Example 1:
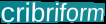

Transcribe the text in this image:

cribriform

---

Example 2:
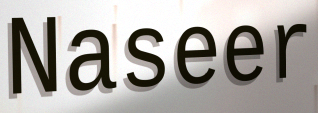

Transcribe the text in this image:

Naseer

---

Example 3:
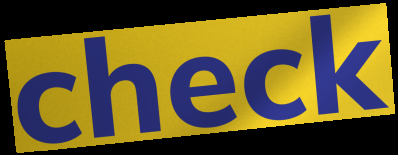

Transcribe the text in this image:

check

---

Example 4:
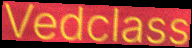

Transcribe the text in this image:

Vedclass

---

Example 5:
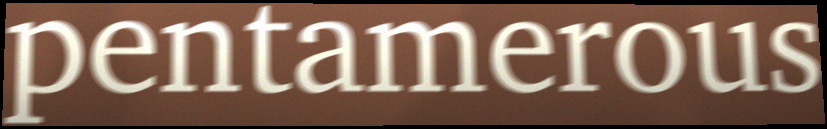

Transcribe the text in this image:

pentamerous